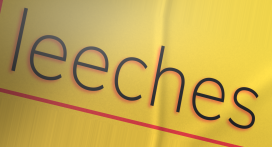
leeches